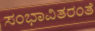
ಸಂಭಾವಿತರಂತೆ